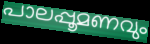
പാലപ്പൂമണവും